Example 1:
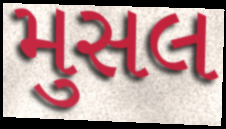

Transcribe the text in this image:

મુસલ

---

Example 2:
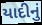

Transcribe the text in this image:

યાદીનું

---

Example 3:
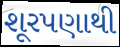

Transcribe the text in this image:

શૂરપણાથી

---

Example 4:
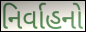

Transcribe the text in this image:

નિર્વાહનો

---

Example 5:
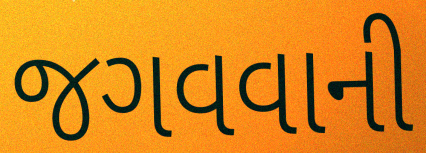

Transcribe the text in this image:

જગવવાની